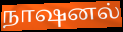
நாஷனல்